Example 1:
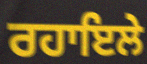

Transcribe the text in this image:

ਰਹਾਇਲੇ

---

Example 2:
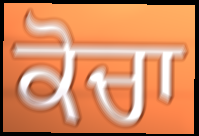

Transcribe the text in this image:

ਕੋਚਾ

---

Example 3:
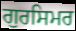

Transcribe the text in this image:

ਗੁਰਸਿਮਰ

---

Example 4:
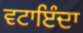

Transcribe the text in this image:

ਵਟਾਇੰਦਾ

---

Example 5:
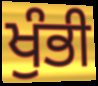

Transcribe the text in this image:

ਖੁੰਭੀ